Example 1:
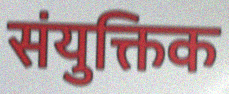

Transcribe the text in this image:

संयुक्तिक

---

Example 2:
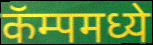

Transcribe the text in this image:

कॅम्पमध्ये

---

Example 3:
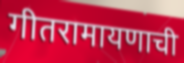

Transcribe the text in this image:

गीतरामायणाची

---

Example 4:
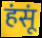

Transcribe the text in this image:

हंसूं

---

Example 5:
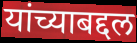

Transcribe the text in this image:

यांच्याबद्दल